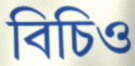
বিচিও